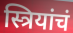
स्त्रियांचं